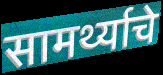
सामर्थ्याचे